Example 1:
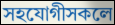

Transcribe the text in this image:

সহযোগীসকলে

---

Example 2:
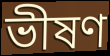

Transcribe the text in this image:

ভীষণ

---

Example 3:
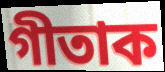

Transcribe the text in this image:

গীতাক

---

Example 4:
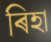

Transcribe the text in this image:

ৰিহা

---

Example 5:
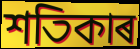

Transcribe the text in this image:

শতিকাৰ